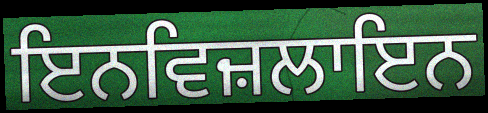
ਇਨਵਿਜ਼ਲਾਇਨ